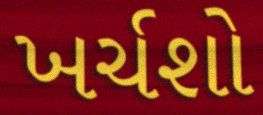
ખર્ચશો